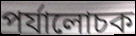
পর্যালোচক